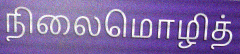
நிலைமொழித்